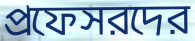
প্রফেসরদের